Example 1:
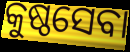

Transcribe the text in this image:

କୁଷ୍ଠସେବା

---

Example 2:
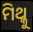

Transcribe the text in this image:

ମିଥ୍କୁ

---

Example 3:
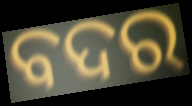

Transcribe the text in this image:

ବଦର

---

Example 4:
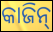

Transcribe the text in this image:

କାଜିନ୍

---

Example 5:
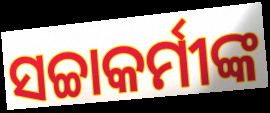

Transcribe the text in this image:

ସଚ୍ଚାକର୍ମୀଙ୍କ